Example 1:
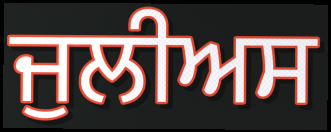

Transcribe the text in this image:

ਜੁਲੀਅਸ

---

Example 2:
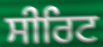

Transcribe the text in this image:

ਸੀਰਿਟ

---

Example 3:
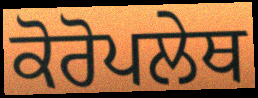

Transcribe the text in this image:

ਕੋਰੋਪਲੇਥ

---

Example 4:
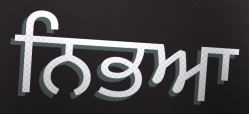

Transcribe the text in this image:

ਨਿਭਆ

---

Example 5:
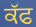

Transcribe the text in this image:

ਕੱਫ